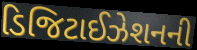
ડિજિટાઈઝેશનની